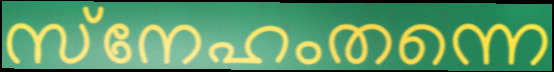
സ്‌നേഹംതന്നെ